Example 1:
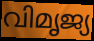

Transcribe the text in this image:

വിമൃജ്യ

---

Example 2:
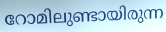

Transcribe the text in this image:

റോമിലുണ്ടായിരുന്ന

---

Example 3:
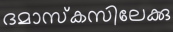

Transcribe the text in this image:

ദമാസ്കസിലേക്കു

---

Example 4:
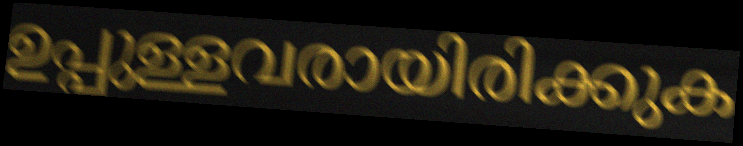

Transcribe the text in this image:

ഉപ്പുള്ളവരായിരിക്കുക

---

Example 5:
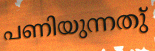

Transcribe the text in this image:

പണിയുന്നതു്